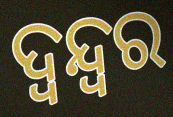
ଦ୍ଵନ୍ଦ୍ୱର